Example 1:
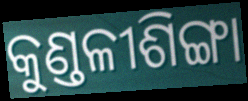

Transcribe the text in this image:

କୁଣ୍ଡଳୀଶିଙ୍ଗା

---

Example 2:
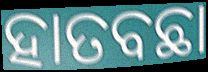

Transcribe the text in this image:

ହାତବଛା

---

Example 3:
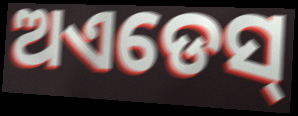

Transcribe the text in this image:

ଅଏଡେସ୍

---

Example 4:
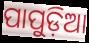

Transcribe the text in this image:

ପାପୁଡ଼ିଆ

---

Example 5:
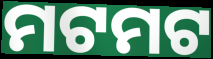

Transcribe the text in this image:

ମଟମଟ